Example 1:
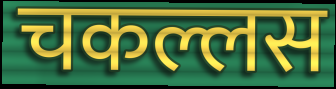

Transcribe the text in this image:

चकल्लस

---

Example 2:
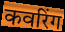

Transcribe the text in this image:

कवरिंग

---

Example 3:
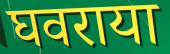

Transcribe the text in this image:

घवराया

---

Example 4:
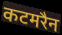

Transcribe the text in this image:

कटमरैन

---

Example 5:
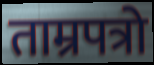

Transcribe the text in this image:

ताम्रपत्रो